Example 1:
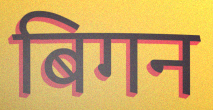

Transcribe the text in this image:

बिगन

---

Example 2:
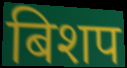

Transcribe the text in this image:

बिशप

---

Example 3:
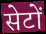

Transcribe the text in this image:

सेटों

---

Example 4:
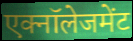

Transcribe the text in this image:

एक्नॉलेजमेंट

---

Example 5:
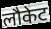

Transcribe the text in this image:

लौकेट